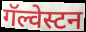
गॅल्वेस्टन